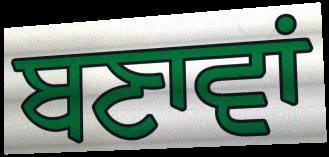
ਬਣਾਵਾਂ